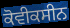
ਕੋਵੀਕਸੀਨ